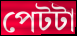
পেটটা